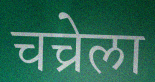
चच्रेला